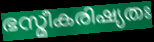
ഭസ്മീകരിഷ്യതഃ